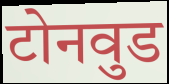
टोनवुड